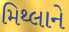
મિથ્લાને